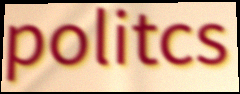
politcs